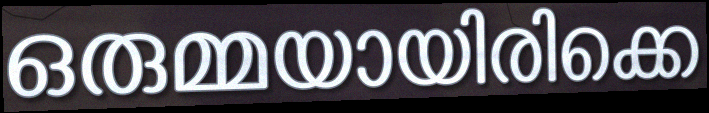
ഒരുമ്മയായിരിക്കെ